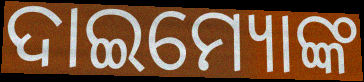
ଦାଇମ୍ଯୋଙ୍କ